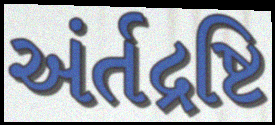
અંર્તદ્રષ્ટિ